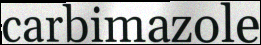
carbimazole